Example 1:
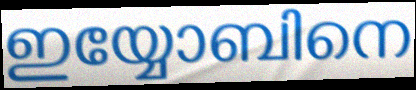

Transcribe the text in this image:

ഇയ്യോബിനെ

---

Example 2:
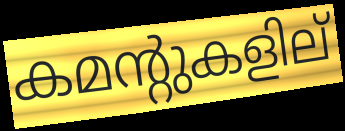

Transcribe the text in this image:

കമന്റുകളില്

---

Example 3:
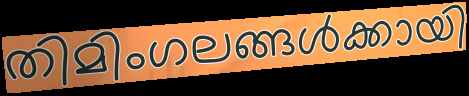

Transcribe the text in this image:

തിമിംഗലങ്ങൾക്കായി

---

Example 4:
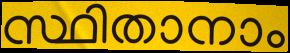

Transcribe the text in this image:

സ്ഥിതാനാം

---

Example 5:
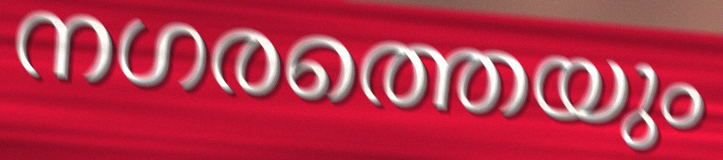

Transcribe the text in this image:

നഗരത്തെയും